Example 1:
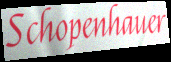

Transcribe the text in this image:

Schopenhauer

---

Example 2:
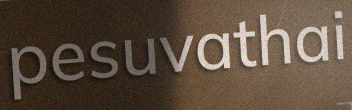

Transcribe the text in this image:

pesuvathai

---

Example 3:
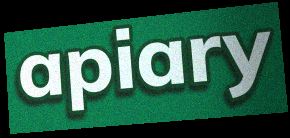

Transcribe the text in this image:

apiary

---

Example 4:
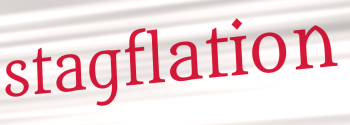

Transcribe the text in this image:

stagflation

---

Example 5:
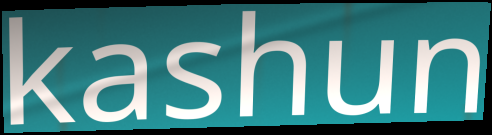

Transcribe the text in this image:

kashun